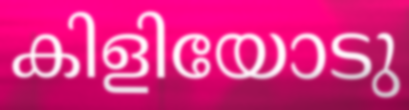
കിളിയോടു